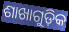
ଶାଖାଗୁଡ଼ିକ